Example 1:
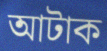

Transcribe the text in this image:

আটাক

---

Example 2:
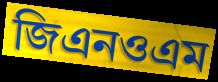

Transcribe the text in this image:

জিএনওএম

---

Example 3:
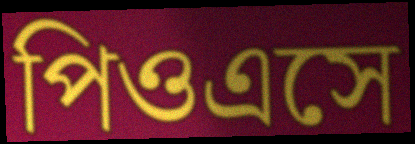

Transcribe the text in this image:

পিওএসে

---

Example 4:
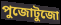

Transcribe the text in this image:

পুজোটুজো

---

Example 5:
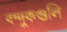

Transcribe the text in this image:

বন্দুকগুলি